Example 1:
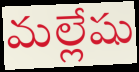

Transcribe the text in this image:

మల్లేషు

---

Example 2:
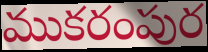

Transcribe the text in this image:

ముకరంపుర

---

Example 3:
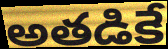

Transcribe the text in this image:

అతడికే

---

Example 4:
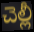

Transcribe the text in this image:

చెల్లీ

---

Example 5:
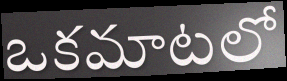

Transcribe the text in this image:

ఒకమాటలో